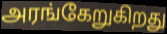
அரங்கேறுகிறது